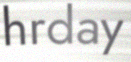
hrday